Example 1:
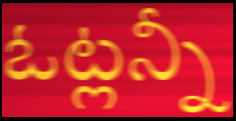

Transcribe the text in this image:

ఓట్లన్నీ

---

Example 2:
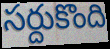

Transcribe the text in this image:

సర్దుకొంది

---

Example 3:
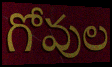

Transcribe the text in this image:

గోవుల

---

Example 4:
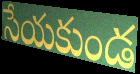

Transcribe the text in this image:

సేయకుండ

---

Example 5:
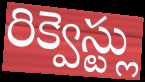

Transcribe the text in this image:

రిక్వెస్ట్లు